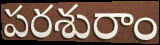
పరశురాం